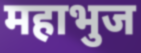
महाभुज